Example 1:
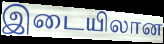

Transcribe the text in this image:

இடையிலான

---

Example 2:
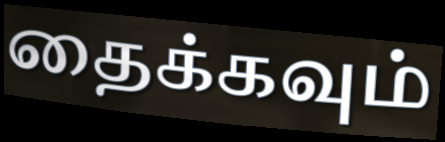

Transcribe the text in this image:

தைக்கவும்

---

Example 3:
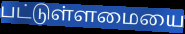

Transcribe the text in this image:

பட்டுள்ளமையை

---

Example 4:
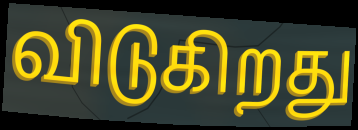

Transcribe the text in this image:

விடுகிறது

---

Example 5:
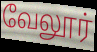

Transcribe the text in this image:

வேலூர்